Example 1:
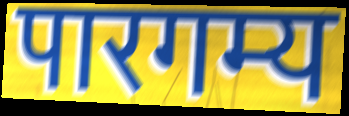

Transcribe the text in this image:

पारगम्य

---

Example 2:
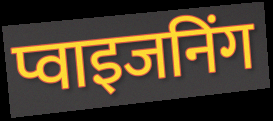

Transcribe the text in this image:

प्वाइजनिंग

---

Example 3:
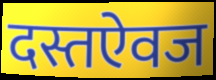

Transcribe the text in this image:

दस्तऐवज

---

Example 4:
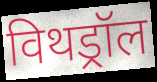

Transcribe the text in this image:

विथड्रॉल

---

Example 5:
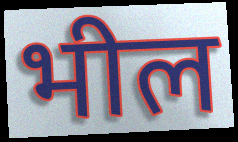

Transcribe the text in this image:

भील